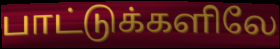
பாட்டுக்களிலே